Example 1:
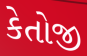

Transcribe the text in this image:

કેતોજી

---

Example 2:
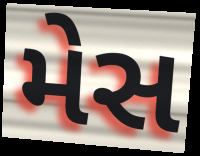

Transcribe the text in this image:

મેસ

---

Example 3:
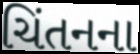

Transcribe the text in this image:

ચિંતનના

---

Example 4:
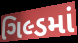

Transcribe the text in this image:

ગિલ્ડમાં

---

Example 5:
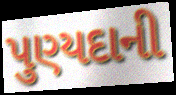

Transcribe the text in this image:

પુણ્યદાની